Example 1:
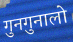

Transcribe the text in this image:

गुनगुनालो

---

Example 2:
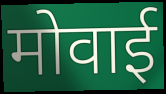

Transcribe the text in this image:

मोवाई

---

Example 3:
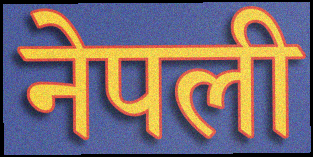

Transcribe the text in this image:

नेपली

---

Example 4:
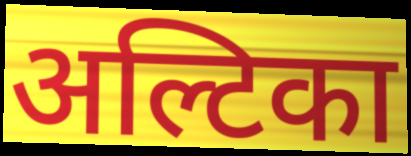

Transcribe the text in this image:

अल्टिका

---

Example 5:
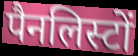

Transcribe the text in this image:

पैनलिस्टों